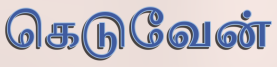
கெடுவேன்